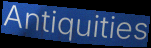
Antiquities